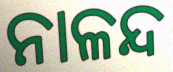
ନାଳନ୍ଦ